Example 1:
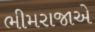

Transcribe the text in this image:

ભીમરાજાએ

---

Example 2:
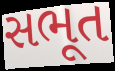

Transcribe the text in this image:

સભૂત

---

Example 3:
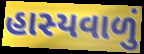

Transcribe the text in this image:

હાસ્યવાળું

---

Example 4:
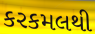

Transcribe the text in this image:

કરકમલથી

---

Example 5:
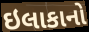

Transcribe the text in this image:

ઇલાકાનો